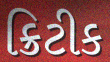
ક્રિટીક